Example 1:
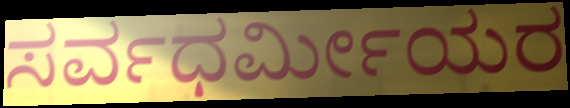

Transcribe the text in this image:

ಸರ್ವಧರ್ಮೀಯರ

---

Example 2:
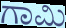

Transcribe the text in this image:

ಗಾಮಿ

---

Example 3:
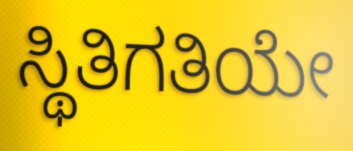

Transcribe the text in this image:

ಸ್ಥಿತಿಗತಿಯೇ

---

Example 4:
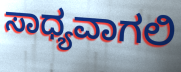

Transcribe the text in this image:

ಸಾಧ್ಯವಾಗಲಿ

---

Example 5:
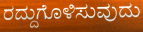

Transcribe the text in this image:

ರದ್ದುಗೊಳಿಸುವುದು